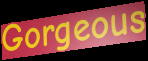
Gorgeous